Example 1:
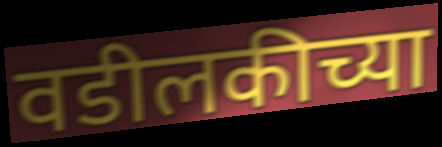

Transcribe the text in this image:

वडीलकीच्या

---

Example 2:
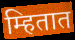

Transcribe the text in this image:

म्हितात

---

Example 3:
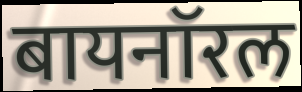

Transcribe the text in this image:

बायनॉरल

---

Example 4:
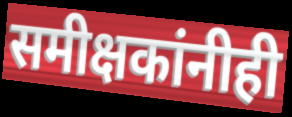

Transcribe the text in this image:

समीक्षकांनीही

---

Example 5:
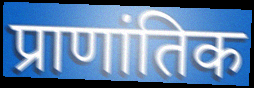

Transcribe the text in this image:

प्राणांतिक